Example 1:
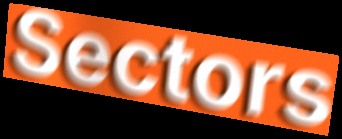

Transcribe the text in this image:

Sectors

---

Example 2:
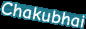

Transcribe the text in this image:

Chakubhai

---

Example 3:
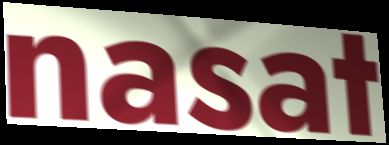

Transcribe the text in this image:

nasat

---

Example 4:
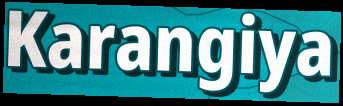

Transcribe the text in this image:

Karangiya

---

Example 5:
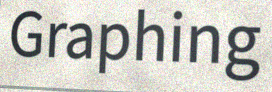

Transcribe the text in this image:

Graphing